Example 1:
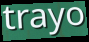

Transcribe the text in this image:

trayo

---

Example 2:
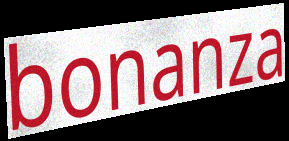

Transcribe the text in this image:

bonanza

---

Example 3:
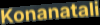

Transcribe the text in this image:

Konanatali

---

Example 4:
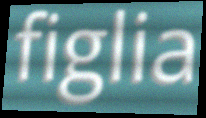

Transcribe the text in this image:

figlia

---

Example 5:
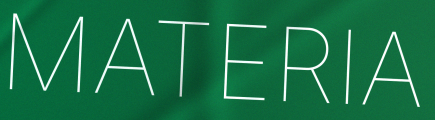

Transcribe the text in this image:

MATERIA